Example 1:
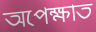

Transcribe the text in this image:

অপেক্ষাত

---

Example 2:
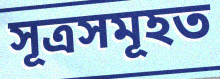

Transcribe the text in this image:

সূত্ৰসমূহত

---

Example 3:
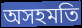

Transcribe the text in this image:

অসহমতি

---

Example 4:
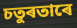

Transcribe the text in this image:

চতুৰতাৰে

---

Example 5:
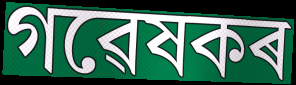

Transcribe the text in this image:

গৱেষকৰ